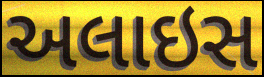
અલાઇસ